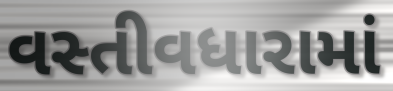
વસ્તીવધારામાં